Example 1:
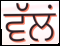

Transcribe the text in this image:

ਵੱਲਂ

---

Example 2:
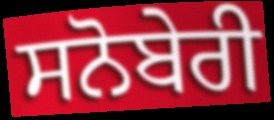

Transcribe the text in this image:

ਸਨੋਬੇਰੀ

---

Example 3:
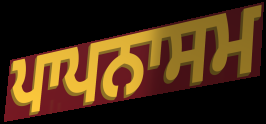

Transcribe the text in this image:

ਪਾਪਨਾਸਮ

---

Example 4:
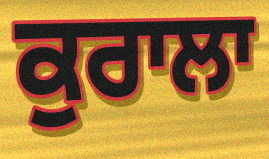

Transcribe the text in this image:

ਕੁਰਾਲਾ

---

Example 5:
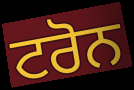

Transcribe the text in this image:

ਟਰੋਨ